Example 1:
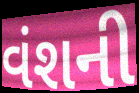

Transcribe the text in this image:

વંશની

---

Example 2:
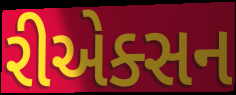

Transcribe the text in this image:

રીએક્સન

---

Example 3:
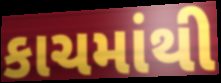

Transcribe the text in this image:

કાચમાંથી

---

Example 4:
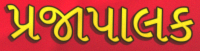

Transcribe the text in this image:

પ્રજાપાલક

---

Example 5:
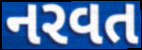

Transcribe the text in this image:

નરવત